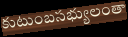
కుటుంబసభ్యులంతా